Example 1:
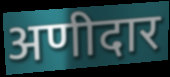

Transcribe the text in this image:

अणीदार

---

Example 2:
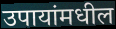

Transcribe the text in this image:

उपायांमधील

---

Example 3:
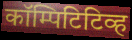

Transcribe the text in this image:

कॉम्पिटिटिव्ह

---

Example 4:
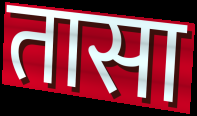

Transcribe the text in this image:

तासा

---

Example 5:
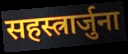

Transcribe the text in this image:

सहस्त्रार्जुना